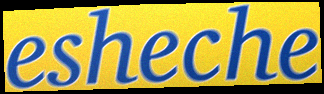
esheche